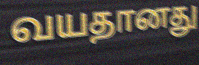
வயதானது